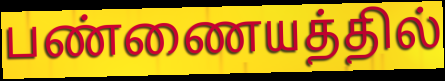
பண்ணையத்தில்